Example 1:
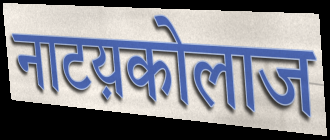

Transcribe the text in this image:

नाटय़कोलाज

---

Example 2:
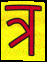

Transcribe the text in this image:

त्र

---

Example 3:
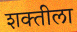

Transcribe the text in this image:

शक्तीला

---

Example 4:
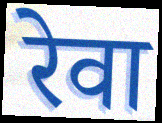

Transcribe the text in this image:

रेवा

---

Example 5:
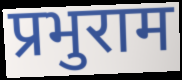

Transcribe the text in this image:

प्रभुराम